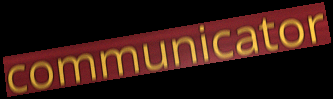
communicator